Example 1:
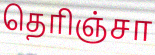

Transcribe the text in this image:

தெரிஞ்சா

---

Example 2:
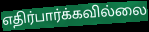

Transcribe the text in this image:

எதிர்பார்க்கவில்லை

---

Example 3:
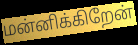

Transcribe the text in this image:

மன்னிக்கிறேன்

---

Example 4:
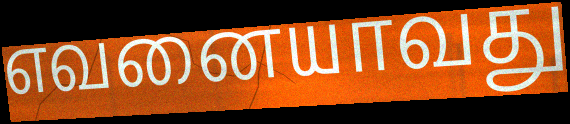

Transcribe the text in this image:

எவனையாவது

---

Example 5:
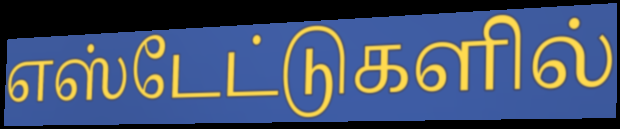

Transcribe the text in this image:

எஸ்டேட்டுகளில்